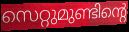
സെറ്റുമുണ്ടിന്റെ